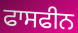
ਫਾਸਫੀਨ